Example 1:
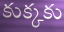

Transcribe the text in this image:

కుక్కకు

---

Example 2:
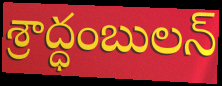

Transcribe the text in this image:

శ్రాద్ధంబులన్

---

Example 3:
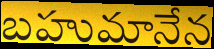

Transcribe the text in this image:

బహుమానేన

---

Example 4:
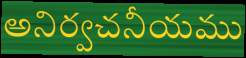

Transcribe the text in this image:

అనిర్వచనీయము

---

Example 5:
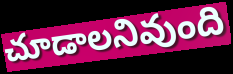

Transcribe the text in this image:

చూడాలనివుంది